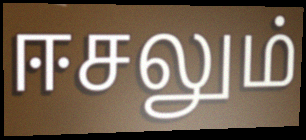
ஈசலும்